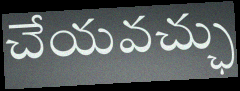
చేయవచ్ఛు